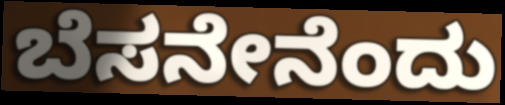
ಬೆಸನೇನೆಂದು